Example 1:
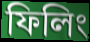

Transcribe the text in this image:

ফিলিং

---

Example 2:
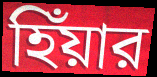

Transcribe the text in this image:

হিঁয়ার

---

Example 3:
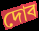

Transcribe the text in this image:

দোব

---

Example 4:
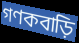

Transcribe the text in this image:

গণকবাড়ি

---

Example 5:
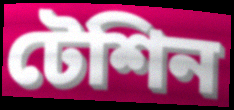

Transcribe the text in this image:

টেশিন